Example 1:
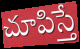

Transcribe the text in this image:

చూపిస్తే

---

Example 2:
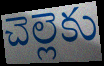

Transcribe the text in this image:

చెల్లెకు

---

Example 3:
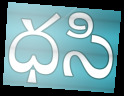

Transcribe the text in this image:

ధసి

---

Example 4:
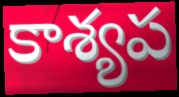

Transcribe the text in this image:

కాశ్యప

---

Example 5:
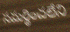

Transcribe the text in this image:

సమర్థించలేని